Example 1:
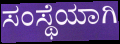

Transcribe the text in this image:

ಸಂಸ್ಥೆಯಾಗಿ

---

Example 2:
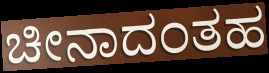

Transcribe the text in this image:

ಚೀನಾದಂತಹ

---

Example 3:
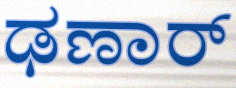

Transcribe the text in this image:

ಢಣಾರ್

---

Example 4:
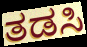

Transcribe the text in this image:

ತಡಸಿ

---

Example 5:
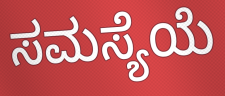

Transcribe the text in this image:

ಸಮಸ್ಯೆಯೆ